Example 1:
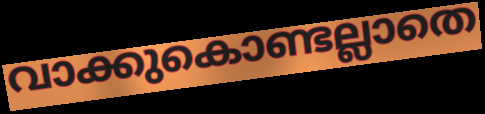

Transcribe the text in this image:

വാക്കുകൊണ്ടല്ലാതെ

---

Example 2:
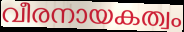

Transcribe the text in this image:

വീരനായകത്വം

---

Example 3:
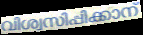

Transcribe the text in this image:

വിശ്വസിപ്പിക്കാന്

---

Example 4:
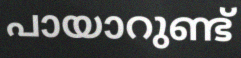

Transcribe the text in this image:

പായാറുണ്ട്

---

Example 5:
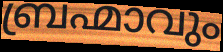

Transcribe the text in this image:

ബ്രഹ്മാവും